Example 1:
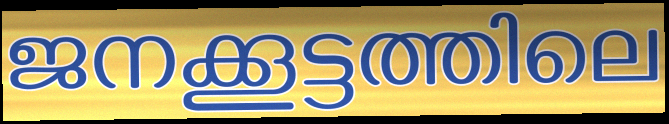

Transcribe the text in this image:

ജനക്കൂട്ടത്തിലെ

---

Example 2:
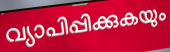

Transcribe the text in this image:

വ്യാപിപ്പിക്കുകയും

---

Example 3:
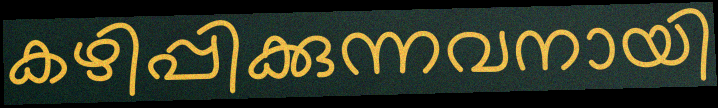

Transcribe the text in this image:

കഴിപ്പിക്കുന്നവനായി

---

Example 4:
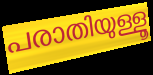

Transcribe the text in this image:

പരാതിയുള്ളൂ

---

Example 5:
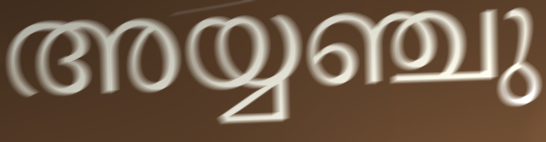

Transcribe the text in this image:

അയ്യഞ്ചു